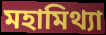
মহামিথ্যা